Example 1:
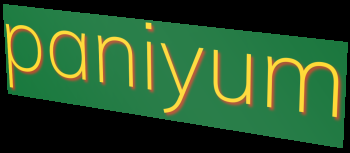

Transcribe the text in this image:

paniyum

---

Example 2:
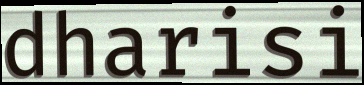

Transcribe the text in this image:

dharisi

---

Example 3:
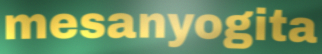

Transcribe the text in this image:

mesanyogita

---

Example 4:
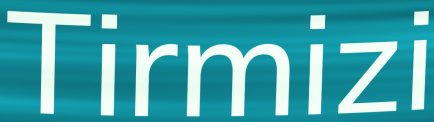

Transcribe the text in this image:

Tirmizi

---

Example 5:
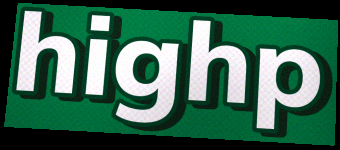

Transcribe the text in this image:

highp